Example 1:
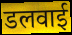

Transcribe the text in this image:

डलवाई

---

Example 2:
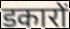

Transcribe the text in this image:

डकारों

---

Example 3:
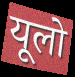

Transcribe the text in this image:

यूलो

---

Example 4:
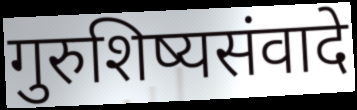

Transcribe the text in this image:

गुरुशिष्यसंवादे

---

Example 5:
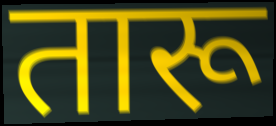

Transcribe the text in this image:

तारू